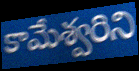
కామేశ్వరిని